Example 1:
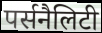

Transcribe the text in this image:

पर्सनैलिटी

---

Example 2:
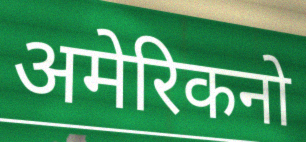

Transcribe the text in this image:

अमेरिकनो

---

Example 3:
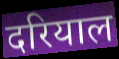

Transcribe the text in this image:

दरियाल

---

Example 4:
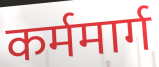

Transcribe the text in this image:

कर्ममार्ग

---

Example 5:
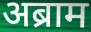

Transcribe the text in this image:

अब्राम